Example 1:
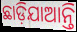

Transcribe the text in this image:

ଛାଡ଼ିଯାଆନ୍ତି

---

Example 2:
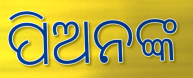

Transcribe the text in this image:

ପିଅନଙ୍କ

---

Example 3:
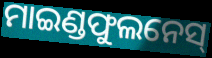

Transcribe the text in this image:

ମାଇଣ୍ଡଫୁଲନେସ୍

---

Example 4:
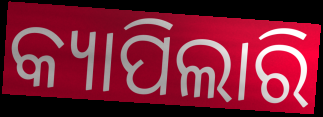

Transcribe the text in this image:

କ୍ୟାପିଲାରି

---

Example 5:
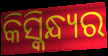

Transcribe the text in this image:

କିସ୍କିନ୍ଧ୍ୟର